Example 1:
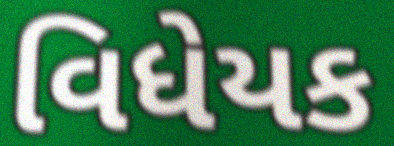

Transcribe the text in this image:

વિધેયક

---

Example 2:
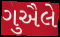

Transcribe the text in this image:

ગુઐલે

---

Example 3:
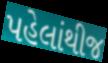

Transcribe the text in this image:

પહેલાંથીજ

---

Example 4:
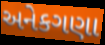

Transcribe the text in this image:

અનેકગણા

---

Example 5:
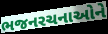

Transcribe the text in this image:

ભજનરચનાઓને